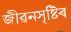
জীৱনসৃষ্টিৰ